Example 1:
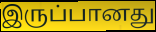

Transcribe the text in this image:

இருப்பானது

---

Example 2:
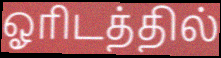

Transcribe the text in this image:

ஓரிடத்தில்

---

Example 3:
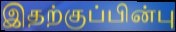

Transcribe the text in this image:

இதற்குப்பின்பு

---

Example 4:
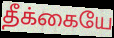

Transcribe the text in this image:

தீக்கையே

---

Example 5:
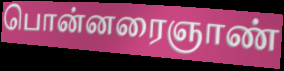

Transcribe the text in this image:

பொன்னரைஞாண்